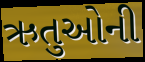
ઋતુઓની